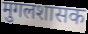
मुगलशासक